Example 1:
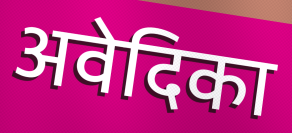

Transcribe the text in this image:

अवेदिका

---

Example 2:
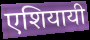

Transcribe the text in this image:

एशियायी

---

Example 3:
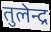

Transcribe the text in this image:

तुलेन्द्र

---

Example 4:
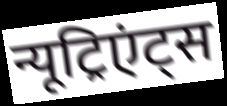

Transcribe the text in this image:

न्यूट्रिएंट्स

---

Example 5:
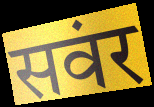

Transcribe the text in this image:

सवंर